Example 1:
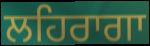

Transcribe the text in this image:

ਲਹਿਰਾਗਾ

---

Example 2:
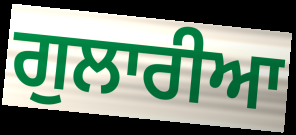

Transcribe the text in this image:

ਗੁਲਾਰੀਆ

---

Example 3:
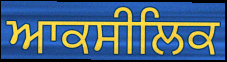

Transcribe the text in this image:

ਆਕਸੀਲਿਕ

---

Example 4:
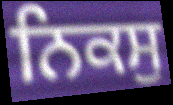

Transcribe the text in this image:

ਨਿਕਸੁ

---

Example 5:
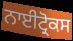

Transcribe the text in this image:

ਨਾਈਟ੍ਰੋਕਸ